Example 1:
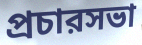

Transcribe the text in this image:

প্রচারসভা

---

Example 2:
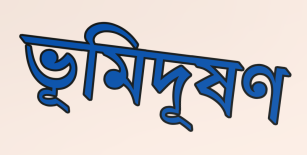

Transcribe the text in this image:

ভূমিদূষণ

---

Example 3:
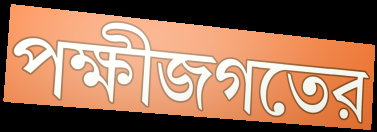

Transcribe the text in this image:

পক্ষীজগতের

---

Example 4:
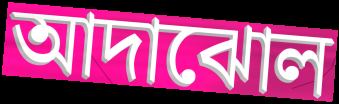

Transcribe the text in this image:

আদাঝোল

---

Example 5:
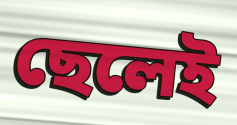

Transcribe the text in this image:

ছেলেই